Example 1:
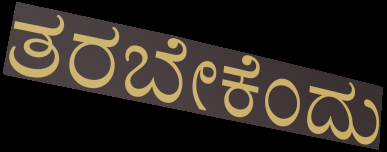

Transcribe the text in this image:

ತರಬೇಕೆಂದು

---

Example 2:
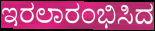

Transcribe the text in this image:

ಇರಲಾರಂಭಿಸಿದ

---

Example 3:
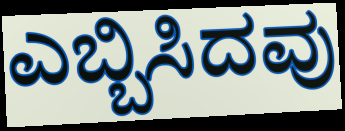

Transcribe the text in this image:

ಎಬ್ಬಿಸಿದವು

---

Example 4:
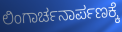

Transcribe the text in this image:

ಲಿಂಗಾರ್ಚನಾರ್ಪಣಕ್ಕೆ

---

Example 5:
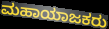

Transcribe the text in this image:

ಮಹಾಯಾಜಕರು